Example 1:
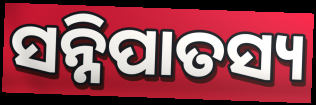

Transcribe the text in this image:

ସନ୍ନିପାତସ୍ୟ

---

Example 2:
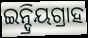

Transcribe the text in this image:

ଇନ୍ଦ୍ରିୟଗ୍ରାହ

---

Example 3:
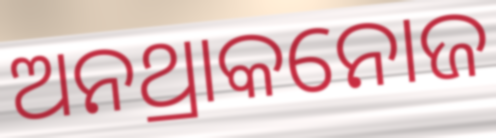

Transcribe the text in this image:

ଅନଥ୍ରାକନୋଜ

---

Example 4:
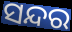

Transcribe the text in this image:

ସନ୍ଦର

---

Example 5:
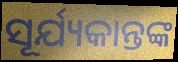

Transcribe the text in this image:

ସୂର୍ଯ୍ୟକାନ୍ତଙ୍କ